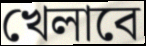
খেলাবে